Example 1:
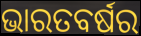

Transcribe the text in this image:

ଭାରତବର୍ଷର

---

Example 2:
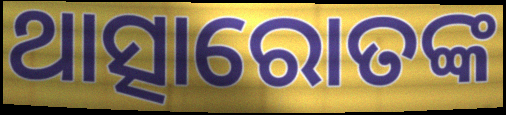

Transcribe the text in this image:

ଥାତ୍ସାରୋତଙ୍କ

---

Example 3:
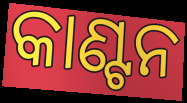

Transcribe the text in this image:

କାଣ୍ଟନ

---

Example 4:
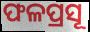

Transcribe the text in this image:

ଫଳପ୍ରସୂ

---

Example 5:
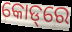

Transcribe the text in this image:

କୋଡ୍‌ରେ